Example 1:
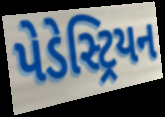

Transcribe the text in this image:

પેડેસ્ટ્રિયન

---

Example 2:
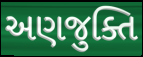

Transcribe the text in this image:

અણજુક્તિ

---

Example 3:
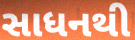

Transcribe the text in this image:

સાધનથી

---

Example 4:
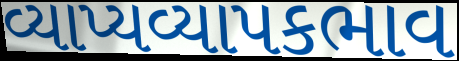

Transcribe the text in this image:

વ્યાપ્યવ્યાપકભાવ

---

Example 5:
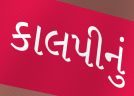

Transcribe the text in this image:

કાલપીનું